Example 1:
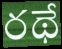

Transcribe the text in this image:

రథే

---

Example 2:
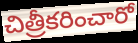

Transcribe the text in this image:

చిత్రీకరించారో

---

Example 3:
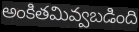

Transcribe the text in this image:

అంకితమివ్వబడింది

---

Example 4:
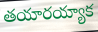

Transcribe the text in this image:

తయారయ్యాక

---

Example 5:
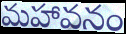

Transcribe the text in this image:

మహావనం